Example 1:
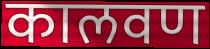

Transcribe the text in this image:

कालवण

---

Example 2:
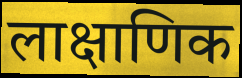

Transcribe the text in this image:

लाक्षाणिक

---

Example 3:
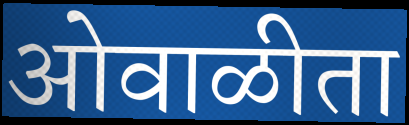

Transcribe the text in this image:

ओवाळीता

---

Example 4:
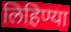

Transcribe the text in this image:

लिहिण्या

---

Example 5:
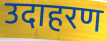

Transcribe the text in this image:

उदाहरण